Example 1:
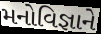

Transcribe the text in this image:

મનોવિજ્ઞાને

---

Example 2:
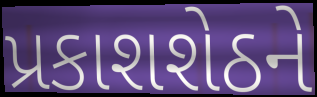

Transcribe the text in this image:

પ્રકાશશેઠને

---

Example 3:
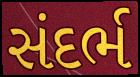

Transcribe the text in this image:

સંદર્ભ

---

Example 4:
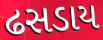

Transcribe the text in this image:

ઢસડાય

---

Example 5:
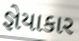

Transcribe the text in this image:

જ્ઞેયાકાર